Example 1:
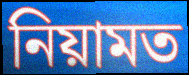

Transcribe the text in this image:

নিয়ামত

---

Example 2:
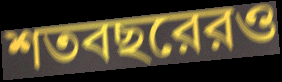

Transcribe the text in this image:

শতবছরেরও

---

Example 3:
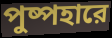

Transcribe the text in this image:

পুষ্পহারে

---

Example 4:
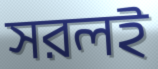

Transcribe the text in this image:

সরলই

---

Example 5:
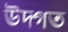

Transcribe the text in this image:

উদ্গত